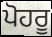
ਪੋਹਰੂ